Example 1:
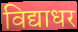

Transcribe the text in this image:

विद्याधर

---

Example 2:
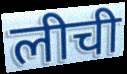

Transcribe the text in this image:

लीची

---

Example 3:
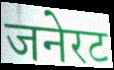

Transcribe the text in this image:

जनेरट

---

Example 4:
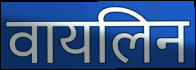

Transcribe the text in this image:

वायलिन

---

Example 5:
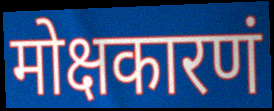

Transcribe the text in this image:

मोक्षकारणं